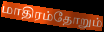
மாதிரம்தோறும்